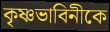
কৃষ্ণভাবিনীকে